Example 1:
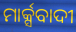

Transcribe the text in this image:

ମାର୍କ୍ସବାଦୀ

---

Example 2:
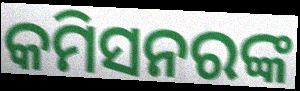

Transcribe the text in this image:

କମିସନରଙ୍କ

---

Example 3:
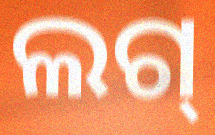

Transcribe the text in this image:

ଲଗ୍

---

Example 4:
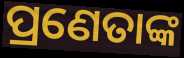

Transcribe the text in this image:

ପ୍ରଣେତାଙ୍କ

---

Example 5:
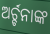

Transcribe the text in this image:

ଅର୍ଚ୍ଚନାଙ୍କ